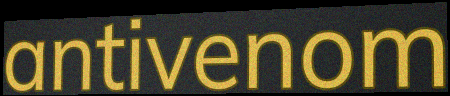
antivenom